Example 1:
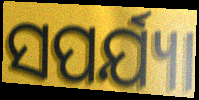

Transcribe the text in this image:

ସପର୍ଯ୍ୟା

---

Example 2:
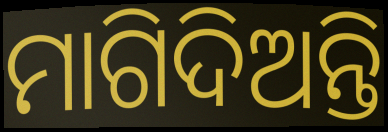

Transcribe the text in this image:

ମାଗିଦିଅନ୍ତି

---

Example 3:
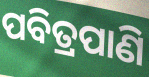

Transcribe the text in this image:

ପବିତ୍ରପାଣି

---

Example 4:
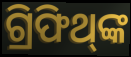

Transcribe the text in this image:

ଗ୍ରିଫିଥ୍‌ଙ୍କ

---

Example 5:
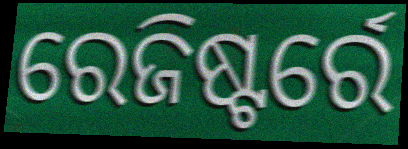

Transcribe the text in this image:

ରେଜିଷ୍ଟର୍ରେ